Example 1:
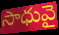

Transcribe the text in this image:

సాధువై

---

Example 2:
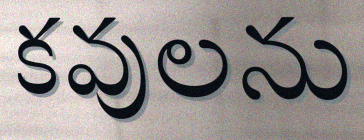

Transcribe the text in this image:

కవులను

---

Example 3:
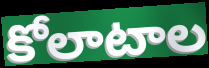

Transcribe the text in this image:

కోలాటాల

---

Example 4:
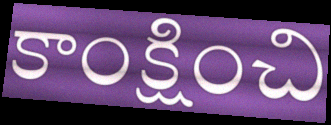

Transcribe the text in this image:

కాంక్షించి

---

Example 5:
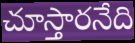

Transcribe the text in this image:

చూస్తారనేది